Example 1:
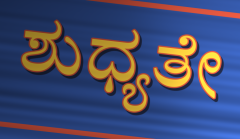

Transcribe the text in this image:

ಶುಧ್ಯತೇ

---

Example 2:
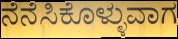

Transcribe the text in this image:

ನೆನೆಸಿಕೊಳ್ಳುವಾಗ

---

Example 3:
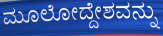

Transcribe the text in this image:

ಮೂಲೋದ್ದೇಶವನ್ನು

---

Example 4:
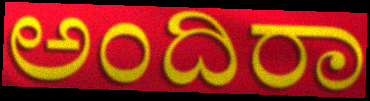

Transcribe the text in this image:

ಅಂದಿರಾ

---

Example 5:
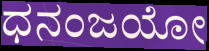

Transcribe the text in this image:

ಧನಂಜಯೋ